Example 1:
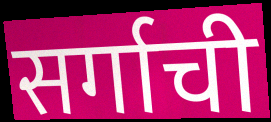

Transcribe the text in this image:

सर्गाची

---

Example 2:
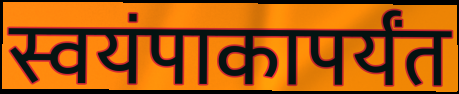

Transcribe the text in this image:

स्वयंपाकापर्यंत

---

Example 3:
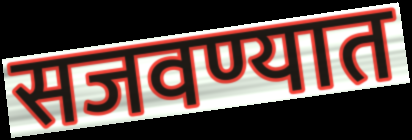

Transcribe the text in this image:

सजवण्यात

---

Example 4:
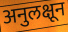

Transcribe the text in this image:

अनुलक्षून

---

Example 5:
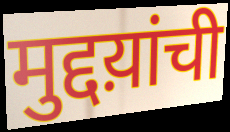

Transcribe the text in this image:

मुद्दय़ांची